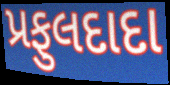
પ્રફુલદાદા